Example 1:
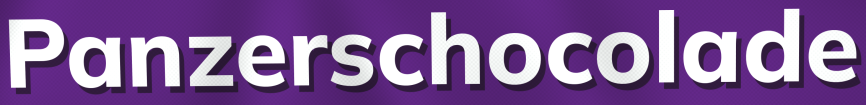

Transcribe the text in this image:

Panzerschocolade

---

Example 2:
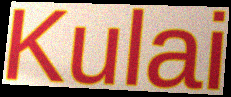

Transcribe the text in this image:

Kulai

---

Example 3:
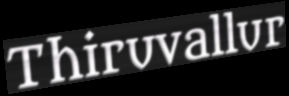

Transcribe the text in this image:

Thiruvallur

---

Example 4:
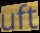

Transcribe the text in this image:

uft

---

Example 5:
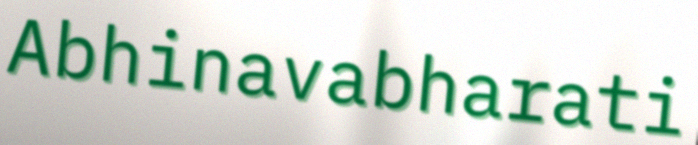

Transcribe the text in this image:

Abhinavabharati